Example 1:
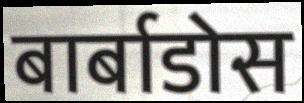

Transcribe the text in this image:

बार्बाडोस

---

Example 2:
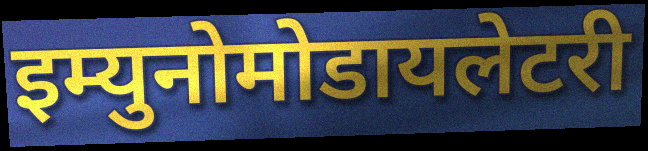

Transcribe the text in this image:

इम्युनोमोडायलेटरी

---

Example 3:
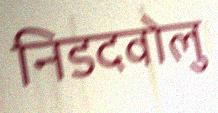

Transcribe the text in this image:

निडदवोलु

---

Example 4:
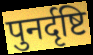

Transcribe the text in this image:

पुनर्दृष्टि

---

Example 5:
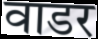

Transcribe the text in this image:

वाडर